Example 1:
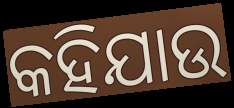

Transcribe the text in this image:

କହିଯାଉ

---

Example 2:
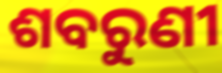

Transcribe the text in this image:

ଶବରୁଣୀ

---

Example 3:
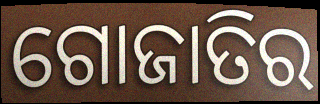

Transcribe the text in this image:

ଗୋଜାତିର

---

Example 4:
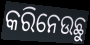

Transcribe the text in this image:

କରିନେଉଛୁ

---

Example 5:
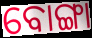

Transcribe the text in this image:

ବୋଙ୍ଗା